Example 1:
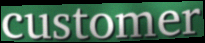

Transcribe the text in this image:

customer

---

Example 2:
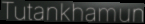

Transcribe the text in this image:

Tutankhamun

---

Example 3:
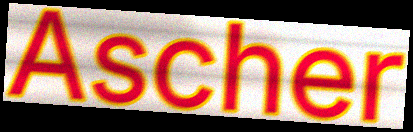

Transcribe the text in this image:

Ascher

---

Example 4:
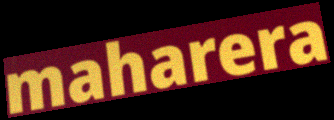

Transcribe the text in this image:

maharera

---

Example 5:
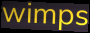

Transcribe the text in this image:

wimps